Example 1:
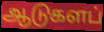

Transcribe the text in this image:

ஆடுகளப்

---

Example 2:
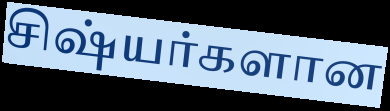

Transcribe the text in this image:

சிஷ்யர்களான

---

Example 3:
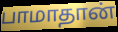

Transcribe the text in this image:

பாமாதான்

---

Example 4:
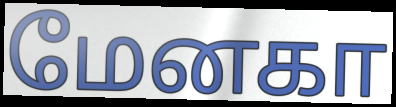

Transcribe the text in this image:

மேனகா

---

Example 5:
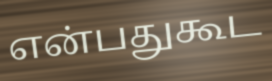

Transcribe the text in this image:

என்பதுகூட